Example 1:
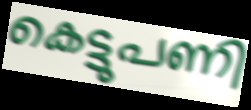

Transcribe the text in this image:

കെട്ടുപണി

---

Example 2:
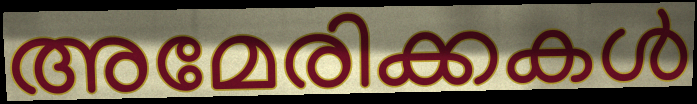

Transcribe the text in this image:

അമേരിക്കകൾ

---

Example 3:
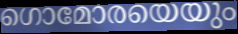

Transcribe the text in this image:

ഗൊമോരയെയും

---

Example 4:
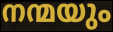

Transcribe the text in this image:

നന്മയും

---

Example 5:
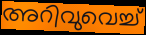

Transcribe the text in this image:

അറിവുവെച്ച്